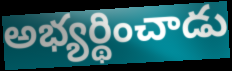
అభ్యర్థించాడు